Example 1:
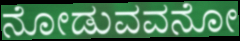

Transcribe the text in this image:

ನೋಡುವವನೋ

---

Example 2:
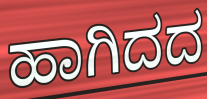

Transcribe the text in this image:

ಹಾಗಿದದ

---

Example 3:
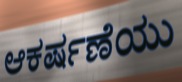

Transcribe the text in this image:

ಆಕರ್ಷಣೆಯು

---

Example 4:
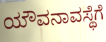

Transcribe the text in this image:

ಯೌವನಾವಸ್ಥೆಗೆ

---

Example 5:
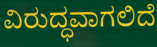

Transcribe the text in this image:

ವಿರುದ್ಧವಾಗಲಿದೆ